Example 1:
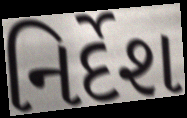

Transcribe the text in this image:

નિર્દેશ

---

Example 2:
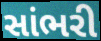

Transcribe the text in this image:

સાંભરી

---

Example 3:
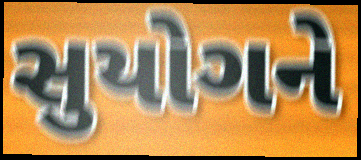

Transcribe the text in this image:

સુયોગને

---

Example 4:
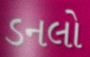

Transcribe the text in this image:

ડનલો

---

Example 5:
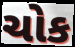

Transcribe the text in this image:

ચોક